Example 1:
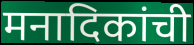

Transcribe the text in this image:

मनादिकांची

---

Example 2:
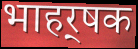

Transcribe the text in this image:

भाहर्षक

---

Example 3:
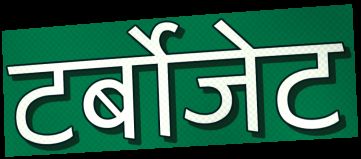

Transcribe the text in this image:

टर्बोजेट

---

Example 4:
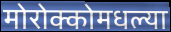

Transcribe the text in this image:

मोरोक्कोमधल्या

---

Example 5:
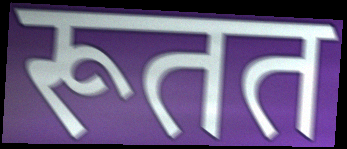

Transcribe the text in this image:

रूतत